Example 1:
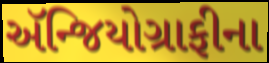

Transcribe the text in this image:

ઍન્જિયોગ્રાફીના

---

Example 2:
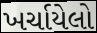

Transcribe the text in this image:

ખર્ચાયેલો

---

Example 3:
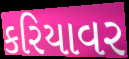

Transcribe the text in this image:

કરિયાવર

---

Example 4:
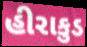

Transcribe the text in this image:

હીરાકુડ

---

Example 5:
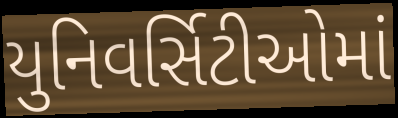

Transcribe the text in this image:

યુનિવર્સિટીઓમાં